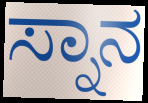
ಸ್ನಾನ